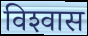
विश्‍वास